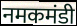
नमकमंडी